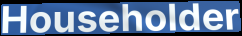
Householder